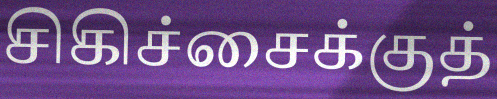
சிகிச்சைக்குத்